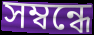
সম্বন্ধে